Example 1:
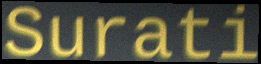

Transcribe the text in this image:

Surati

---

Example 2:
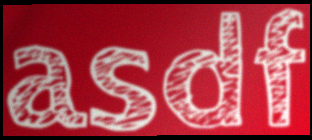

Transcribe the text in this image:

asdf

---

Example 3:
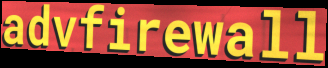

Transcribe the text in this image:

advfirewall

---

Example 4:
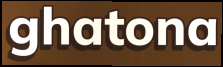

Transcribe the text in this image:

ghatona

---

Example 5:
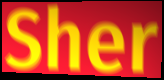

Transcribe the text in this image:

Sher